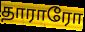
தாராரோ